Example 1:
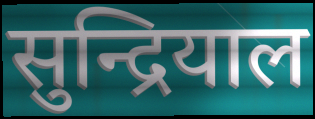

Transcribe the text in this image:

सुन्द्रियाल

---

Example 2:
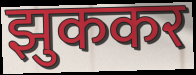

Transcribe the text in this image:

झुककर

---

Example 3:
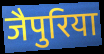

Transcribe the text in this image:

जैपुरिया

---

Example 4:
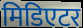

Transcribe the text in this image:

मिडिएटर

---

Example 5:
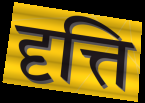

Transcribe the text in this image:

दृत्ति